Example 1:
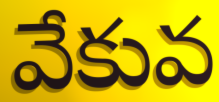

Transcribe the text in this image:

వేకువ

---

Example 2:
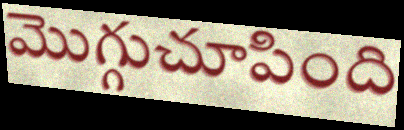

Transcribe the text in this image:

మొగ్గుచూపింది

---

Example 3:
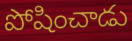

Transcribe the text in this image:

పోషించాడు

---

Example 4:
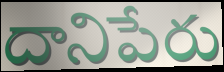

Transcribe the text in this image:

దానిపేరు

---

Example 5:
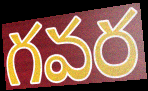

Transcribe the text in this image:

గవర